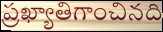
ప్రఖ్యాతిగాంచినది